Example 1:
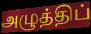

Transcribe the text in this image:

அழுத்திப்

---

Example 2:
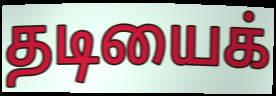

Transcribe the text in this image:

தடியைக்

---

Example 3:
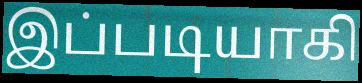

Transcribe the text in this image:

இப்படியாகி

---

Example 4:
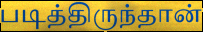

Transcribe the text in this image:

படித்திருந்தான்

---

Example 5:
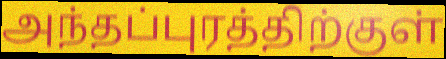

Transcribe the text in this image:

அந்தப்புரத்திற்குள்